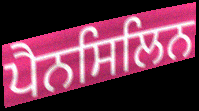
ਪੈਨਸਿਲਿਨ